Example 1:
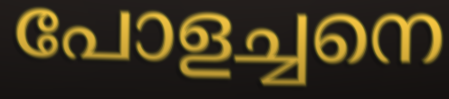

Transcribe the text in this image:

പോളച്ചനെ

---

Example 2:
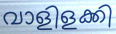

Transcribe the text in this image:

വാളിളക്കി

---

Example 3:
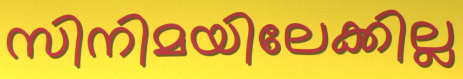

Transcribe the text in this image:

സിനിമയിലേക്കില്ല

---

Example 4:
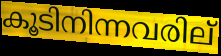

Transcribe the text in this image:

കൂടിനിന്നവരില്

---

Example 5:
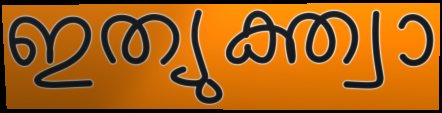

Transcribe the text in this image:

ഇത്യുക്ത്വാ